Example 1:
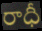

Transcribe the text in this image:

రాధీ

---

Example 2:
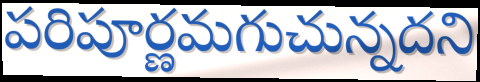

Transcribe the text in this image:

పరిపూర్ణమగుచున్నదని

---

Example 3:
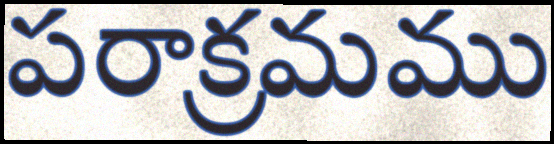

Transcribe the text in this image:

పరాక్రమము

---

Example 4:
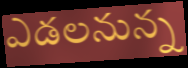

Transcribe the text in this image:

ఎడలనున్న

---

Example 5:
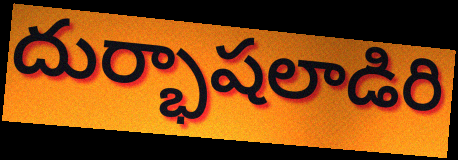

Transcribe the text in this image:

దుర్భాషలాడిరి